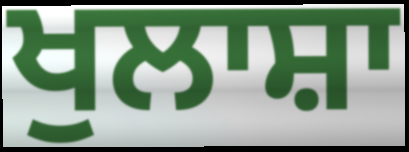
ਖੁਲਾਸ਼ਾ